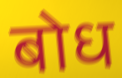
बोध